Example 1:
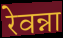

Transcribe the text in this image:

रेवन्ना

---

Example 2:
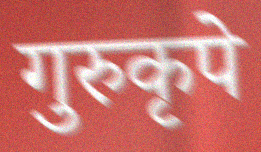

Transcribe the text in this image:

गुरुकृपे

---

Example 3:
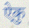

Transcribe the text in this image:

ऐकु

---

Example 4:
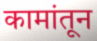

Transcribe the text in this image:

कामांतून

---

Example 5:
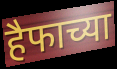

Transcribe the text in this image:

हैफाच्या